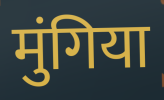
मुंगिया